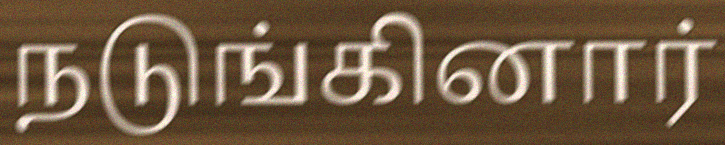
நடுங்கினார்